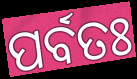
ପର୍ବତଃ